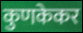
कुणकेकर